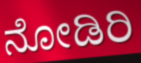
ನೋಡಿರಿ